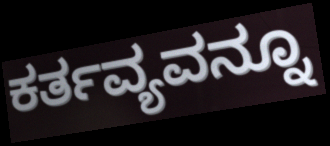
ಕರ್ತವ್ಯವನ್ನೂ